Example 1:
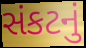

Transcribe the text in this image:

સંકટનું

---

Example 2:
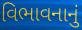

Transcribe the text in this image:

વિભાવનાનું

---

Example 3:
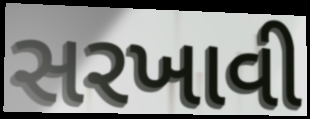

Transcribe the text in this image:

સરખાવી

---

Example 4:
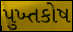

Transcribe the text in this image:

પુખ્તકોષ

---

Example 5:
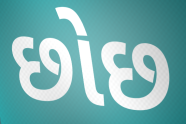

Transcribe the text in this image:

છોછ